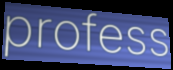
profess